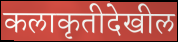
कलाकृतीदेखील